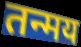
तन्मय